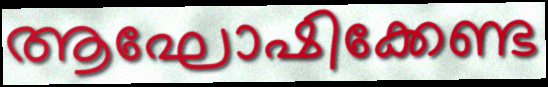
ആഘോഷിക്കേണ്ട